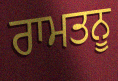
ਰਾਮਤਨੂ